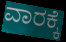
ವಾರಕ್ಕೆ